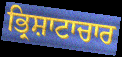
ਭ੍ਰਿਸ਼ਾਟਾਚਾਰ